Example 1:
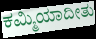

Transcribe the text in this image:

ಕಮ್ಮಿಯಾದೀತು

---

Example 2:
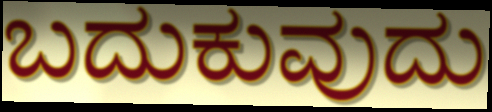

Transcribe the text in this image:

ಬದುಕುವುದು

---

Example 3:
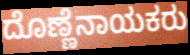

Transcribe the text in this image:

ದೊಣ್ಣೆನಾಯಕರು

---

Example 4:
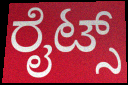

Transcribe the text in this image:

ರೈಟ್ಸ್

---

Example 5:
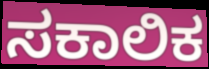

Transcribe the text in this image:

ಸಕಾಲಿಕ